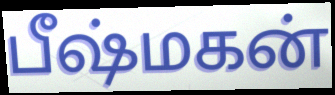
பீஷ்மகன்